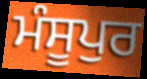
ਮੰਸੂਪੁਰ